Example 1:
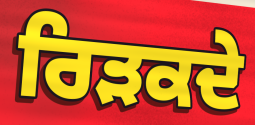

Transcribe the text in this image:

ਰਿੜਕਦੇ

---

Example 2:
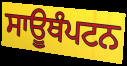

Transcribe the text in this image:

ਸਾਊਥੰਪਟਨ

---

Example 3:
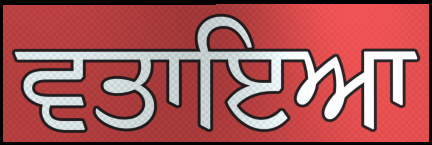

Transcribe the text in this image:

ਵਤਾਇਆ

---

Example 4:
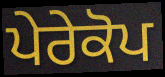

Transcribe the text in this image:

ਪੇਰੇਕੋਪ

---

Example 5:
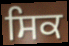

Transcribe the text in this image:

ਸਿਕ